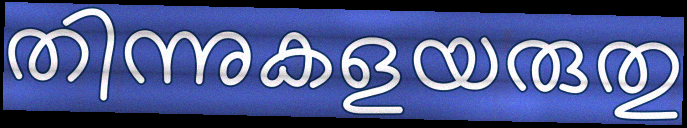
തിന്നുകളയരുതു